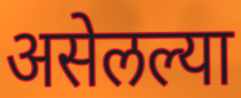
असेलल्या